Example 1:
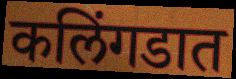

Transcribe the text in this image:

कलिंगडात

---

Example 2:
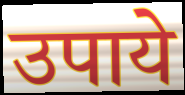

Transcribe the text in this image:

उपाये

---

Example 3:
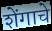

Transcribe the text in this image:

शेंगाचे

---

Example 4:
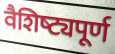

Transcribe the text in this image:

वैशिष्‍ट्यपूर्ण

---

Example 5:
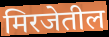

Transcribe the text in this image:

मिरजेतील